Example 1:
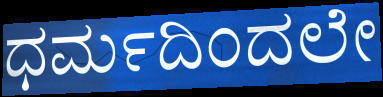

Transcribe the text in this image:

ಧರ್ಮದಿಂದಲೇ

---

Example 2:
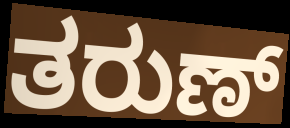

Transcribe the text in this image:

ತರುಣ್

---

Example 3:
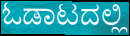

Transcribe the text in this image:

ಓಡಾಟದಲ್ಲಿ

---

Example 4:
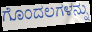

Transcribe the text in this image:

ಗೊಂದಲಗಳನ್ನು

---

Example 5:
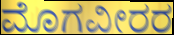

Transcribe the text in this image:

ಮೊಗವೀರರ